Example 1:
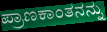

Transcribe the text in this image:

ಪ್ರಾಣಕಾಂತನನ್ನು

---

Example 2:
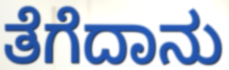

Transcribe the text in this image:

ತೆಗೆದಾನು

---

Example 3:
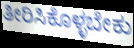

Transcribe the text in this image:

ತೀರಿಸಿಕೊಳ್ಳಬೇಕು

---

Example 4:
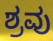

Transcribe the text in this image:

ಶ್ರವು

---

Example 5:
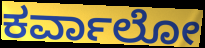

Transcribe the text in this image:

ಕರ್ವಾಲೋ